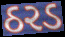
ઠરડ